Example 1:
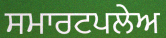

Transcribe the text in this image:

ਸਮਾਰਟਪਲੇਅ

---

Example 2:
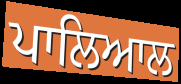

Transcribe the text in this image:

ਪਾਲਿਆਲ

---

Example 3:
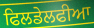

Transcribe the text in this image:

ਫਿਲਡੇਲਫੀਆ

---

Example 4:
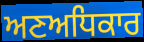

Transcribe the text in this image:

ਅਣਅਧਿਕਾਰ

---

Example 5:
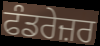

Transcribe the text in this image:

ਫੰਡਰੇਜ਼ਰ